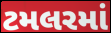
ટમલરમાં